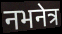
नभनेत्र